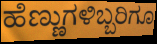
ಹೆಣ್ಣುಗಳಿಬ್ಬರಿಗೂ